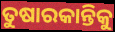
ତୁଷାରକାନ୍ତିକୁ